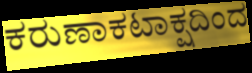
ಕರುಣಾಕಟಾಕ್ಷದಿಂದ